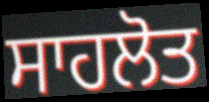
ਸਾਹਲੋਤ